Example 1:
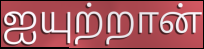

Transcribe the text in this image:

ஐயுற்றான்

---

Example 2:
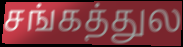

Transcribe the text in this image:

சங்கத்துல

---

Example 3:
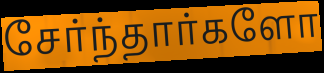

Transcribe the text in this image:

சேர்ந்தார்களோ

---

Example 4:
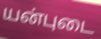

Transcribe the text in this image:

யன்புடை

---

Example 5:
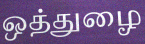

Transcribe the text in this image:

ஒத்துழை